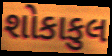
શોકાકુલ